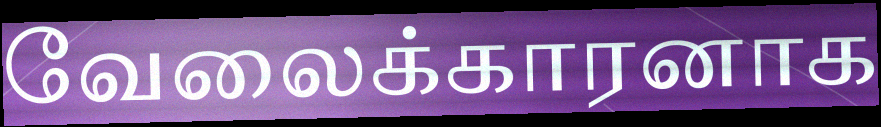
வேலைக்காரனாக